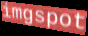
imgspot